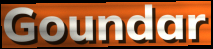
Goundar